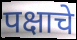
पक्षाचे